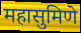
महासुमिणे